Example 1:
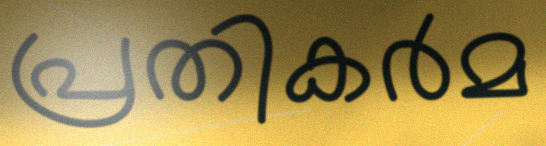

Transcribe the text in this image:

പ്രതികർമ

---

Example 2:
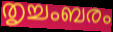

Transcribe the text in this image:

തൃച്ചംബരം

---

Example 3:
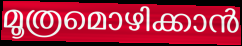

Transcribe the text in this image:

മൂത്രമൊഴിക്കാൻ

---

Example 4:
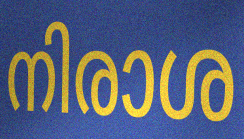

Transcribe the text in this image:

നിരാശ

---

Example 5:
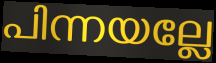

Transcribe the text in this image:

പിന്നയല്ലേ